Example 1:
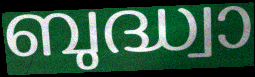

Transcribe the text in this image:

ബുദ്ധ്വാ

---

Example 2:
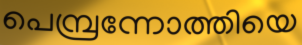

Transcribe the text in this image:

പെമ്പ്രന്നോത്തിയെ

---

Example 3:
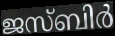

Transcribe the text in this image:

ജസ്ബിർ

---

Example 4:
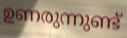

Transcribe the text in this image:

ഉണരുന്നുണ്ട്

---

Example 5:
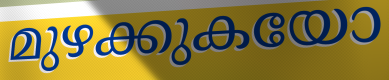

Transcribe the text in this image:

മുഴക്കുകയോ